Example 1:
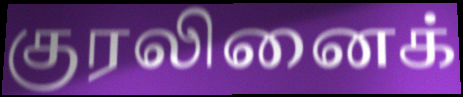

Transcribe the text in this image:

குரலினைக்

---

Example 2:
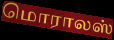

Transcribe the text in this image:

மொராலஸ்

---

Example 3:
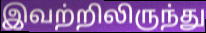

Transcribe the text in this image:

இவற்றிலிருந்து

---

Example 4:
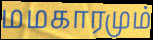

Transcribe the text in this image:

மமகாரமும்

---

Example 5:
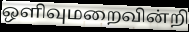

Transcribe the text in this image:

ஒளிவுமறைவின்றி